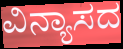
ವಿನ್ಯಾಸದ